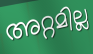
അറ്റമില്ല